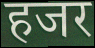
हजर